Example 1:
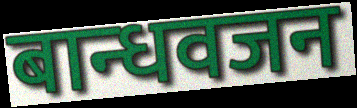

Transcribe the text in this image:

बान्धवजन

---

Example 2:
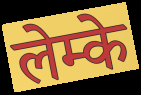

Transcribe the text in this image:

लेम्के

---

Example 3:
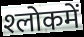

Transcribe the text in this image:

श्‍लोकमें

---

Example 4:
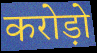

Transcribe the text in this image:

करोड़ो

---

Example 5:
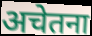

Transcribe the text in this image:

अचेतना